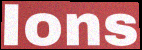
Ions